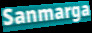
Sanmarga